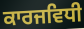
ਕਾਰਜਵਿਧੀ